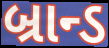
બ્રાન્ડ